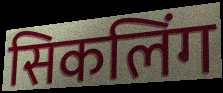
सिकलिंग